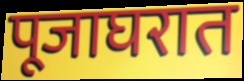
पूजाघरात